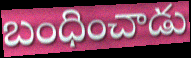
బంధించాడు